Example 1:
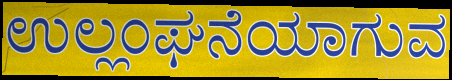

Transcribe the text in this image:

ಉಲ್ಲಂಘನೆಯಾಗುವ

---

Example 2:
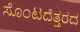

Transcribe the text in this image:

ಸೊಂಟದೆತ್ತರದ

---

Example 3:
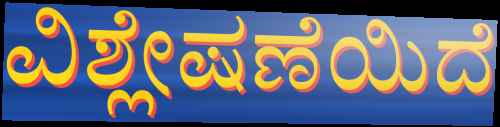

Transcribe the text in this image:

ವಿಶ್ಲೇಷಣೆಯಿದೆ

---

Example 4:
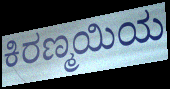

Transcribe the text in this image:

ಕಿರಣ್ಮಯಿಯ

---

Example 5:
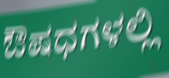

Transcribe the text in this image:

ಔಷಧಗಳಲ್ಲಿ